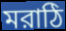
মরাঠি